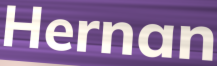
Hernan